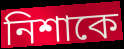
নিশাকে